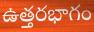
ఉత్తరభాగం